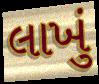
લાખું